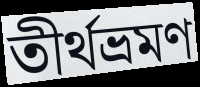
তীৰ্থভ্ৰমণ